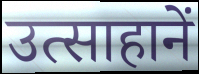
उत्साहानें